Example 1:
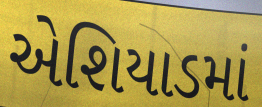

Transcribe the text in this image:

એશિયાડમાં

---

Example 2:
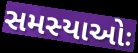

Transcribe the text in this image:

સમસ્યાઓઃ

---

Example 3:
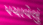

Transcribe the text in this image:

પચાવેલું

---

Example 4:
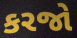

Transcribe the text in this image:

કરજો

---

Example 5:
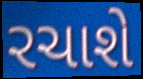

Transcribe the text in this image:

રચાશે